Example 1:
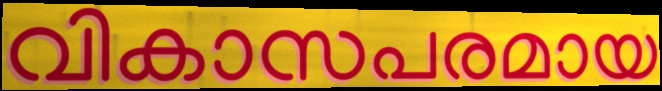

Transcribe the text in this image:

വികാസപരമായ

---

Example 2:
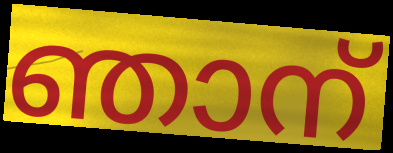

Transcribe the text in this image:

ഞാന്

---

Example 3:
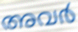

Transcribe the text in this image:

അവർ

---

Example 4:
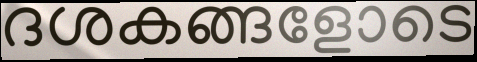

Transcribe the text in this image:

ദശകങ്ങളോടെ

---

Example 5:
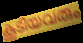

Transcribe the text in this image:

കൂടിയവരും